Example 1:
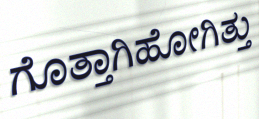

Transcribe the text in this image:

ಗೊತ್ತಾಗಿಹೋಗಿತ್ತು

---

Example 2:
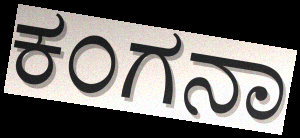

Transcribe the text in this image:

ಕಂಗನಾ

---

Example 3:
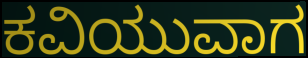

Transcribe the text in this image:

ಕವಿಯುವಾಗ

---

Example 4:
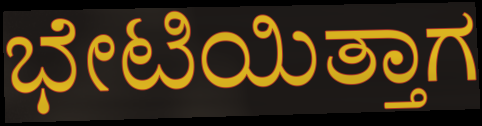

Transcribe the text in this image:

ಭೇಟಿಯಿತ್ತಾಗ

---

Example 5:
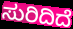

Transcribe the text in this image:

ಸುರಿದಿದೆ